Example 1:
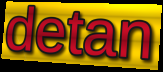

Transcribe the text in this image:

detan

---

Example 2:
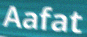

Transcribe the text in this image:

Aafat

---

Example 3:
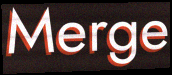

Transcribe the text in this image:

Merge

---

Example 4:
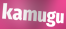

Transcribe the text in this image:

kamugu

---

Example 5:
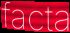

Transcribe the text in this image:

facta